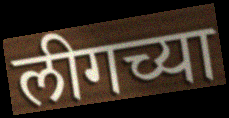
लीगच्या